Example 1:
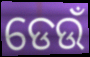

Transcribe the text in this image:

ଡେଉଁ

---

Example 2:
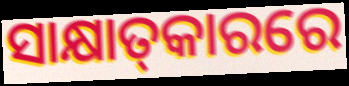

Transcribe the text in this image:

ସାକ୍ଷାତ୍‌କାରରେ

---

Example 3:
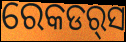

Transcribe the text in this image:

ରେକଡର୍‌ସ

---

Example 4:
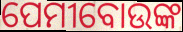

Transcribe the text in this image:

ପେମୀବୋଉଙ୍କ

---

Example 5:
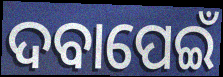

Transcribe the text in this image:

ଦବାପେଇଁ